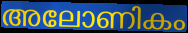
അലോണികം